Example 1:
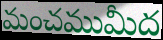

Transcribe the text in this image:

మంచముమీద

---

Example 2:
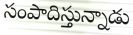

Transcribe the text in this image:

సంపాదిస్తున్నాడు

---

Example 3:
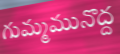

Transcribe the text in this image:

గుమ్మమునొద్ద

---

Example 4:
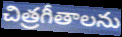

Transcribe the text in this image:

చిత్రగీతాలను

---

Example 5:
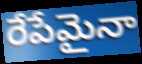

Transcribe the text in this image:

రేపేమైనా